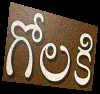
గోలకి